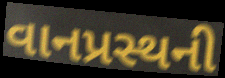
વાનપ્રસ્થની